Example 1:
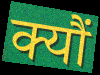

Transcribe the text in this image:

क्यौं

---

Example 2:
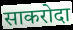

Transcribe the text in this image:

साकरोदा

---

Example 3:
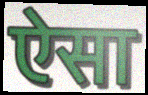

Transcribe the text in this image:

ऐेसा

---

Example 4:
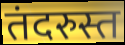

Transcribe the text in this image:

तंदरुस्त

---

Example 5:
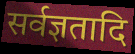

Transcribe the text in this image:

सर्वज्ञतादि